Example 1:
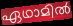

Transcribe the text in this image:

ഏഥാമിൽ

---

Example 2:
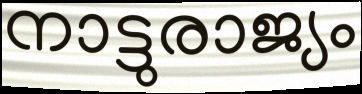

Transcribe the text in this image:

നാട്ടുരാജ്യം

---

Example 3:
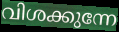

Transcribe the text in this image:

വിശക്കുന്നേ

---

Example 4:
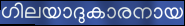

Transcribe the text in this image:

ഗിലയാദുകാരനായ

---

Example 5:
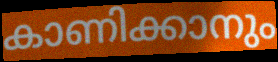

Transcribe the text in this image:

കാണിക്കാനും